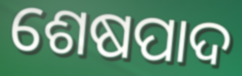
ଶେଷପାଦ